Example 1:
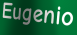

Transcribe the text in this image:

Eugenio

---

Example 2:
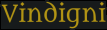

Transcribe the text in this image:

Vindigni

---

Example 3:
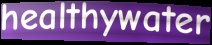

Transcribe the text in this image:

healthywater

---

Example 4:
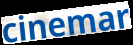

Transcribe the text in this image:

cinemar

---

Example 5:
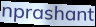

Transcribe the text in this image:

nprashant